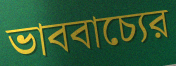
ভাববাচ্যের